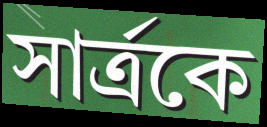
সার্ত্রকে